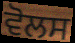
ਵੋਲਸ